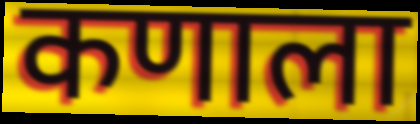
कणाला